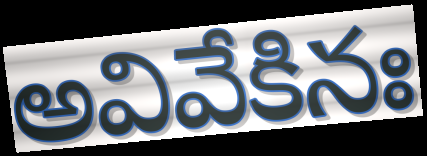
అవివేకినః